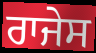
ਰਾਜੇਸ